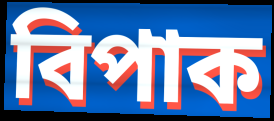
বিপাক